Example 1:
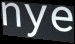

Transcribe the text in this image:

nye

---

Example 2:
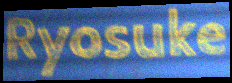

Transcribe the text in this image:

Ryosuke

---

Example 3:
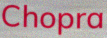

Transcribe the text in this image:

Chopra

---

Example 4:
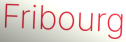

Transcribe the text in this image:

Fribourg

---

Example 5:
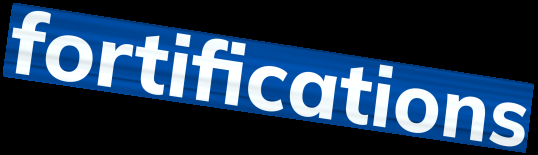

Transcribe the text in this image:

fortifications